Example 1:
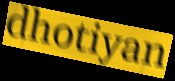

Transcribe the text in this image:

dhotiyan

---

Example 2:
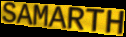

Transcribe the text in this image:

SAMARTH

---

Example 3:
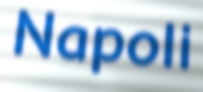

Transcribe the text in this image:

Napoli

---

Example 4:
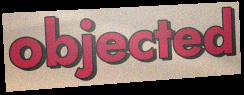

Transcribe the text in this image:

objected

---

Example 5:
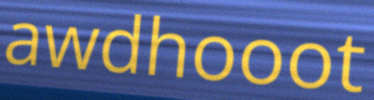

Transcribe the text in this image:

awdhooot